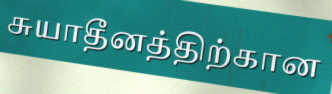
சுயாதீனத்திற்கான